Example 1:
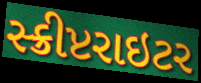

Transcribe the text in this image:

સ્ક્રીપ્ટરાઇટર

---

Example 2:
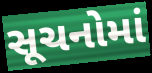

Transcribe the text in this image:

સૂચનોમાં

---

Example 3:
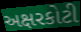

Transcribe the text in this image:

અક્ષરકોટી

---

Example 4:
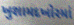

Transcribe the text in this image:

ખુશામદખોરમાં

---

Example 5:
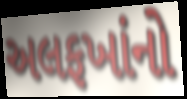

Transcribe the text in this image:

અલફખાંનો